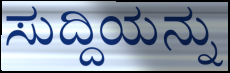
ಸುದ್ದಿಯನ್ನು